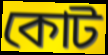
কোট